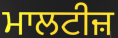
ਮਾਲਟੀਜ਼